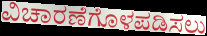
ವಿಚಾರಣೆಗೊಳಪಡಿಸಲು